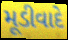
મૂડીવાદે